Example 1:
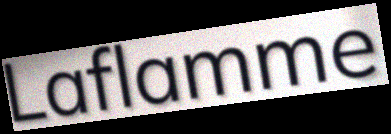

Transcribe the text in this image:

Laflamme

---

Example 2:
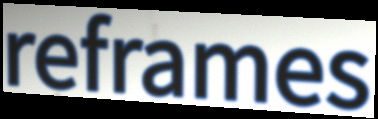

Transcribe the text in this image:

reframes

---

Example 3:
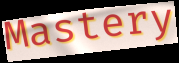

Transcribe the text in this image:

Mastery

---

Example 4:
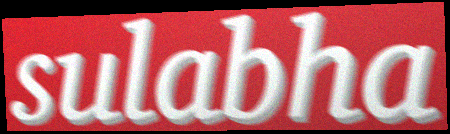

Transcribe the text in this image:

sulabha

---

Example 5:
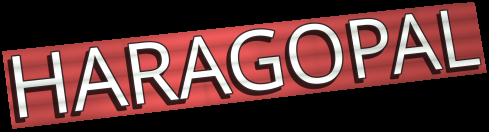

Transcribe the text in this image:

HARAGOPAL